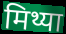
मिथ्‍या